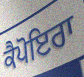
ਕੈਪੋਇਰਾ